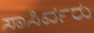
ಸಾಸಿರ್ವರು